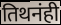
तिथनंही